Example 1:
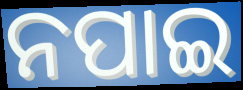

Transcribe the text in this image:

ନପାଇ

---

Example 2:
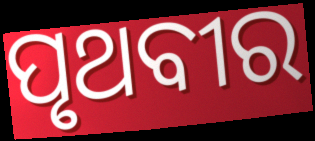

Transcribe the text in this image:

ପୃଥବୀର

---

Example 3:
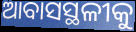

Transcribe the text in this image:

ଆବାସସ୍ଥଳୀକୁ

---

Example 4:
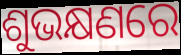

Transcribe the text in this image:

ଶୁଭକ୍ଷଣରେ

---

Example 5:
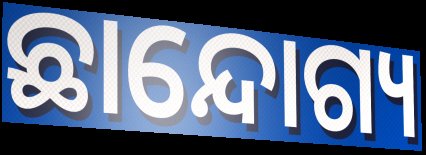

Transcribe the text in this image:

ଛାନ୍ଦୋଗ୍ୟ